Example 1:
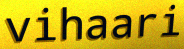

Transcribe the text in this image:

vihaari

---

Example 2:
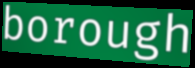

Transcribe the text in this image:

borough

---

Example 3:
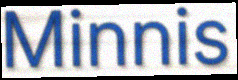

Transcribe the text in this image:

Minnis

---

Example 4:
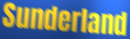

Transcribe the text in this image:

Sunderland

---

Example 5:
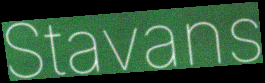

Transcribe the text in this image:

Stavans